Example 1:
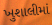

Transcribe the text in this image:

ખુશાલીમાં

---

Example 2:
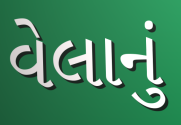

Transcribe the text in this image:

વેલાનું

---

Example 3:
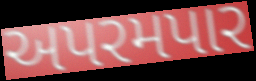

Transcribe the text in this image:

અપરમપાર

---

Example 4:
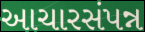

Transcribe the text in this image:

આચારસંપન્ન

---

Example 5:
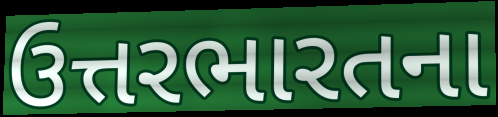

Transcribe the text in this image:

ઉત્તરભારતના